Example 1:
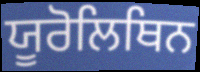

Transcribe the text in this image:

ਯੂਰੋਲਿਥਿਨ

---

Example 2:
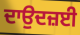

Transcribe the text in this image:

ਦਾਉਦਜ਼ਈ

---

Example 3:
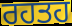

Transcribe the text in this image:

ਰਹਤਹ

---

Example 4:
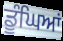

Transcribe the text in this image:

ਡੂੰਘਿਆਂ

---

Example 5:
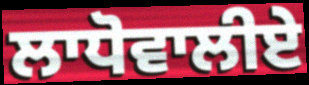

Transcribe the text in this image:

ਲਾਧੋਵਾਲੀਏ